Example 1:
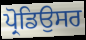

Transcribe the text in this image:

ਪ੍ਰੋਡਿਉਸਰ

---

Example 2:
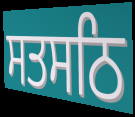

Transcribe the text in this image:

ਸਤਸਠਿ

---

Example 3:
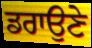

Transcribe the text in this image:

ਡਰਾਉਣੇ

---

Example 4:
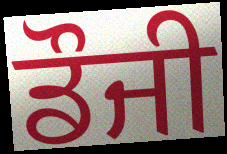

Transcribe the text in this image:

ਡੌਜੀ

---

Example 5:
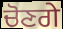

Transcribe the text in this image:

ਚੋਣਗੇ